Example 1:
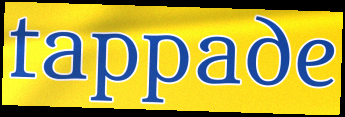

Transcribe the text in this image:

tappade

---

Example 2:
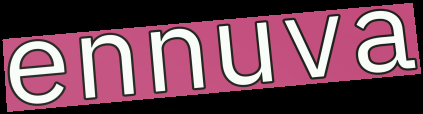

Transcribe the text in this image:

ennuva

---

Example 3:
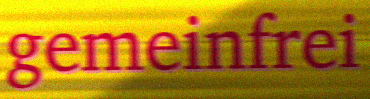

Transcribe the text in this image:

gemeinfrei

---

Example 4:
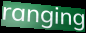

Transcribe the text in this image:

ranging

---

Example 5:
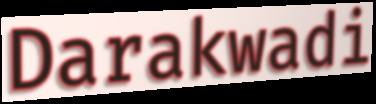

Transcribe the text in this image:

Darakwadi